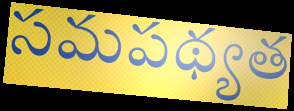
సమపథ్యత